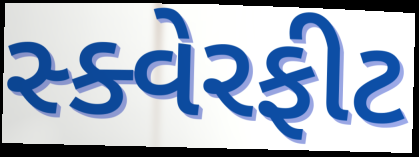
સ્ક્વેરફીટ